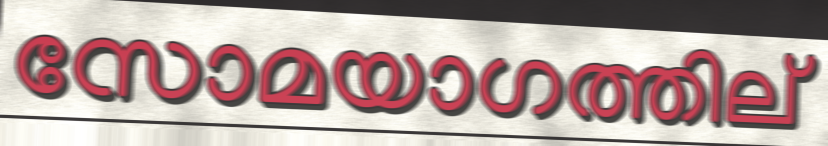
സോമയാഗത്തില്